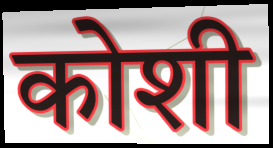
कोशी